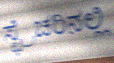
ಸ್ಟ್ರೆಚರಿನಲ್ಲಿ